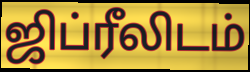
ஜிப்ரீலிடம்